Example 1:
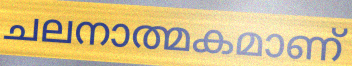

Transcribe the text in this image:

ചലനാത്മകമാണ്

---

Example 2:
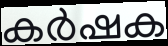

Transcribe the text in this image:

കർഷക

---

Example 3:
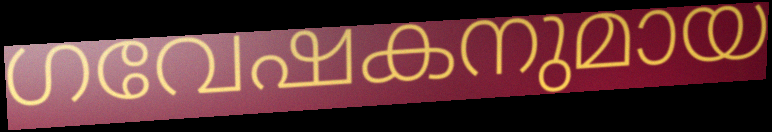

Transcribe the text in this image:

ഗവേഷകനുമായ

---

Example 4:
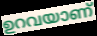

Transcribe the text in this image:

ഉറവയാണ്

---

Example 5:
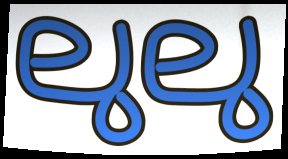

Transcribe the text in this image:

ലുലു